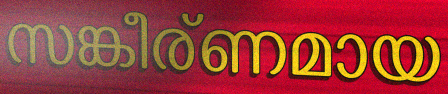
സങ്കീര്ണമായ